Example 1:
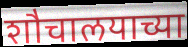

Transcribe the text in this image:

शौचालयाच्या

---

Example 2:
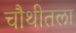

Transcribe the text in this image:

चौथीतला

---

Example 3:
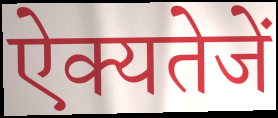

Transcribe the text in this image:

ऐक्यतेजें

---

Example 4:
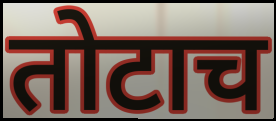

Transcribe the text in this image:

तोटाच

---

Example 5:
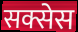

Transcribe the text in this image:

सक्सेस